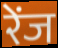
रेंज